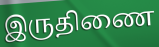
இருதிணை